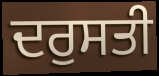
ਦਰੁਸਤੀ